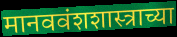
मानववंशशास्त्राच्या